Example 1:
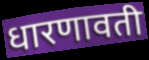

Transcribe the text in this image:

धारणावती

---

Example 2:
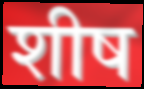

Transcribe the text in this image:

शीष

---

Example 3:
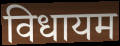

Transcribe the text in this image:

विधायम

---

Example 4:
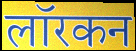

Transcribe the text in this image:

लॉरकन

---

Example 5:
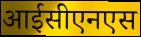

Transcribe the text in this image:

आईसीएनएस